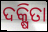
ଦକ୍ଷିତା